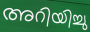
അറിയിച്ചു